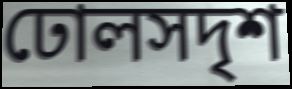
ঢোলসদৃশ